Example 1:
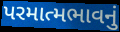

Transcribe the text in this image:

પરમાત્મભાવનું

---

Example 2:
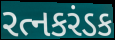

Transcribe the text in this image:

રત્નકરંડક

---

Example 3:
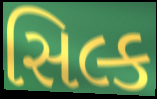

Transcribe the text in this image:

સિલ્ક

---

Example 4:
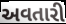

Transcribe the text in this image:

અવતારી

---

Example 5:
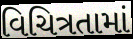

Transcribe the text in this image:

વિચિત્રતામાં